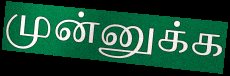
முன்னுக்க